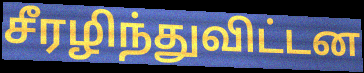
சீரழிந்துவிட்டன